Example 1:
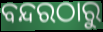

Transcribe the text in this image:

ବନ୍ଦରଠାରୁ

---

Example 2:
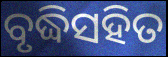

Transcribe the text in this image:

ବୃଦ୍ଧିସହିତ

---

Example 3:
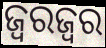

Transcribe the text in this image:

ଜ୍ୱରଜ୍ୱର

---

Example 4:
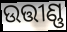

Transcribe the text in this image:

ଉତ୍ତୀଣ୍ଣ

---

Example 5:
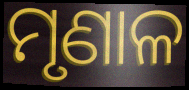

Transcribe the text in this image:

ମୃଣାଳ